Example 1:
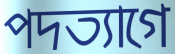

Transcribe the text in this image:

পদত্যাগে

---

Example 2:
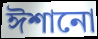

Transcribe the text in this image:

ঈশানো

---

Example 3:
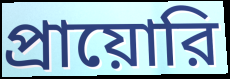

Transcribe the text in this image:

প্রায়োরি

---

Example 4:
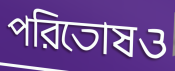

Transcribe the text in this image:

পরিতোষও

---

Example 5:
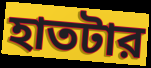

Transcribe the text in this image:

হাতটার